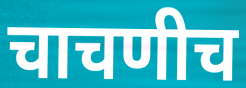
चाचणीच